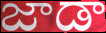
జాడా